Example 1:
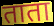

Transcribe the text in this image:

ताता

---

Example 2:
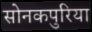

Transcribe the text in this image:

सोनकपुरिया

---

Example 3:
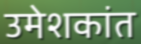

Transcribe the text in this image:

उमेशकांत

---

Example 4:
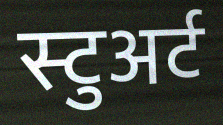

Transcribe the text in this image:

स्टुअर्ट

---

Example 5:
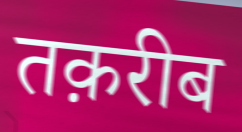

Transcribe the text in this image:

तक़रीब